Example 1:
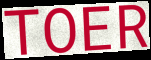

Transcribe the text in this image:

TOER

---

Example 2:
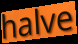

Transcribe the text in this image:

halve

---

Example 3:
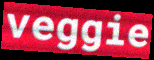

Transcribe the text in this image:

veggie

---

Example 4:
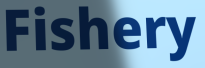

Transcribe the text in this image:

Fishery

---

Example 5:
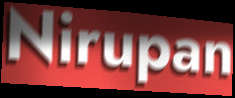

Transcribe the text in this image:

Nirupan